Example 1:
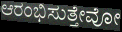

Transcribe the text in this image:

ಆರಂಭಿಸುತ್ತೇವೋ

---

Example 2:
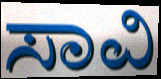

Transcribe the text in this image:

ಸಾವಿ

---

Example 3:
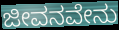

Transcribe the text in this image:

ಜೀವನವೇನು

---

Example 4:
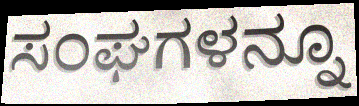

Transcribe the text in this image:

ಸಂಘಗಳನ್ನೂ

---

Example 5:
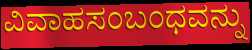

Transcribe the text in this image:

ವಿವಾಹಸಂಬಂಧವನ್ನು